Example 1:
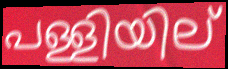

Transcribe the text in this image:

പള്ളിയില്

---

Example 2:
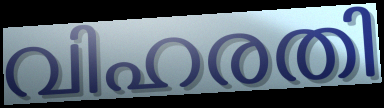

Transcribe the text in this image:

വിഹരതി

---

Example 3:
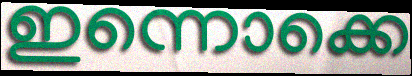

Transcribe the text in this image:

ഇന്നൊക്കെ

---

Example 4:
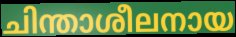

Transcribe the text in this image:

ചിന്താശീലനായ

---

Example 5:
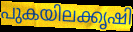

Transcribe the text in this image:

പുകയിലക്കൃഷി